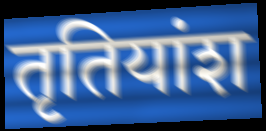
तृतियांश